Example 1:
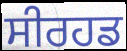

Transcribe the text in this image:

ਸੀਰਹਡ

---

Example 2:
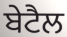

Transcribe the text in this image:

ਬੇਟੈਲ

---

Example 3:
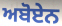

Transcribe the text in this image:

ਅਬੋਏਨ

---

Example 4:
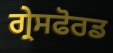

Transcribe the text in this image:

ਗ੍ਰੇਸਫੋਰਡ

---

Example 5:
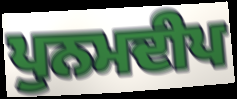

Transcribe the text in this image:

ਪੁਨਮਦੀਪ